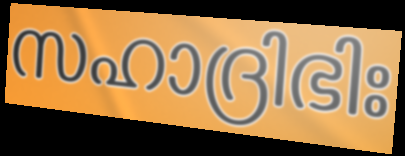
സഹാദ്രിഭിഃ